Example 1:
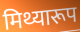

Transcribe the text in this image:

मिथ्यारूप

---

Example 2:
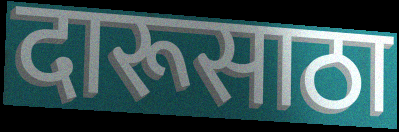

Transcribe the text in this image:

दारूसाठा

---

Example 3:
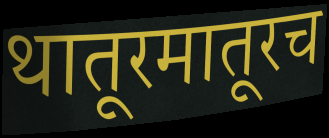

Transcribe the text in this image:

थातूरमातूरच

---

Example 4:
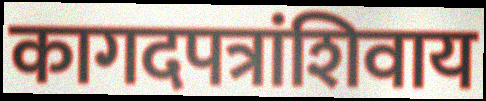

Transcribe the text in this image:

कागदपत्रांशिवाय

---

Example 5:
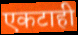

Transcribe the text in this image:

एकटाही